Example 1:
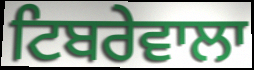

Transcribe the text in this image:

ਟਿਬਰੇਵਾਲਾ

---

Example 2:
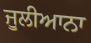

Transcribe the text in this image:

ਜੂਲੀਆਨਾ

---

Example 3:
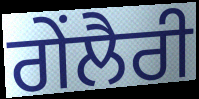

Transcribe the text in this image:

ਗੇਂਲੈਰੀ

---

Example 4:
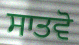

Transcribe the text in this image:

ਸਾਤਵੋ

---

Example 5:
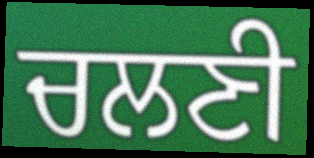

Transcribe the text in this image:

ਚਲਣੀ